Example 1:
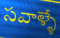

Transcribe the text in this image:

సవాళ్ళే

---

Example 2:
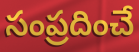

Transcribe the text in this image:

సంప్రదించే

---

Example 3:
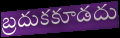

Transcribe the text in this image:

బ్రదుకకూడదు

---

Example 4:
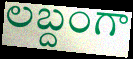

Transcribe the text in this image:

లబ్దంగా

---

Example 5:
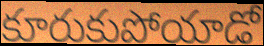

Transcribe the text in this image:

కూరుకుపోయాడో